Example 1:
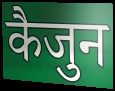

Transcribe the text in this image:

कैजुन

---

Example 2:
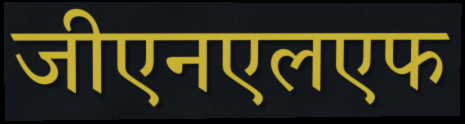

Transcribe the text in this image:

जीएनएलएफ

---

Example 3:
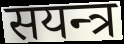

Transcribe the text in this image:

सयन्त्र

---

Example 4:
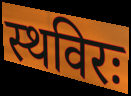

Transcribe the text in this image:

स्थविरः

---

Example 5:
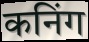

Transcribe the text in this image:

कनिंग